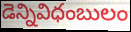
డెన్నివిధంబులం